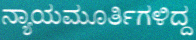
ನ್ಯಾಯಮೂರ್ತಿಗಳಿದ್ದ